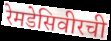
रेमडेसिवीरची